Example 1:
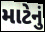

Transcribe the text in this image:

માટેનું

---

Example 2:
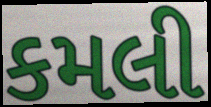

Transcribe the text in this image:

કમલી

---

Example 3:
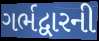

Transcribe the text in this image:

ગર્ભદ્વારની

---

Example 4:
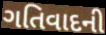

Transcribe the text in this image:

ગતિવાદની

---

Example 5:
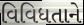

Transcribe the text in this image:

વિવિધતાને